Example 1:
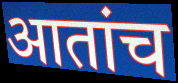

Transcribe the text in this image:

आतांच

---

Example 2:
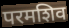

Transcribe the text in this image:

परमशिव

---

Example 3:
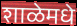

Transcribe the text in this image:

शाळेमधे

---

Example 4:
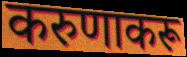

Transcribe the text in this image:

करुणाकरू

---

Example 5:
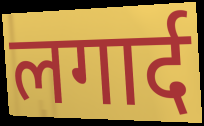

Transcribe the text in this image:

लगार्द